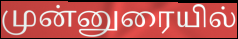
முன்னுரையில்